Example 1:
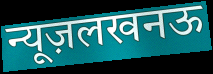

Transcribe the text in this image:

न्यूज़लखनऊ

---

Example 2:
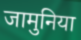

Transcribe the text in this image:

जामुनिया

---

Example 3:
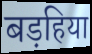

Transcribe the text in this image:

बड़हिया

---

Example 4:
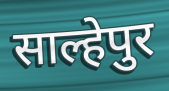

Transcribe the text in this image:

साल्हेपुर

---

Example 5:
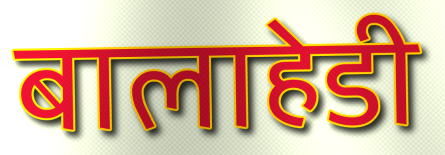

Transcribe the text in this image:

बालाहेडी